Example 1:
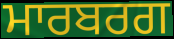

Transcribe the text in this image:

ਮਾਰਬਰਗ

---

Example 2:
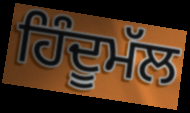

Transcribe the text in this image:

ਹਿੰਦੂਮੱਲ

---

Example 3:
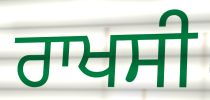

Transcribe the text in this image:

ਰਾਖਸੀ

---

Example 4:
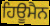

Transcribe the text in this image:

ਹਿਊਮੈਨ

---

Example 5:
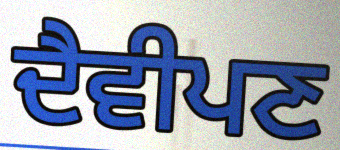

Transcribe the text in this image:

ਦੈਵੀਪਣ